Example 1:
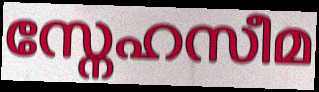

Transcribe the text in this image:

സ്നേഹസീമ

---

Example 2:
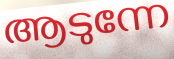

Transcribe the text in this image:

ആടുന്നേ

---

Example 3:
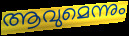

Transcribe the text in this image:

ആവുമെന്നും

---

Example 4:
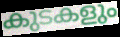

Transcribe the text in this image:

കുടകളും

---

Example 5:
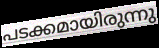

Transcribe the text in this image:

പടക്കമായിരുന്നു